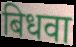
बिधवा